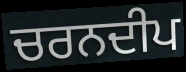
ਚਰਨਦੀਪ